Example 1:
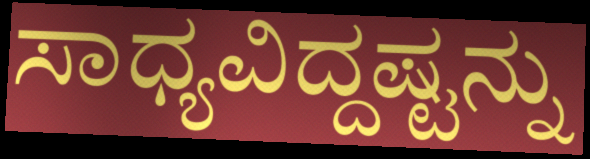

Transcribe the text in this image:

ಸಾಧ್ಯವಿದ್ದಷ್ಟನ್ನು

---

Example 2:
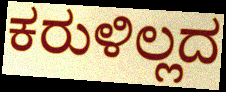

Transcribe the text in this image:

ಕರುಳಿಲ್ಲದ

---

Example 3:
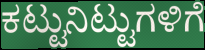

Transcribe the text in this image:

ಕಟ್ಟುನಿಟ್ಟುಗಳಿಗೆ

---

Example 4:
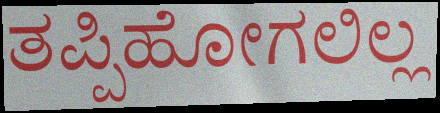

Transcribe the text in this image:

ತಪ್ಪಿಹೋಗಲಿಲ್ಲ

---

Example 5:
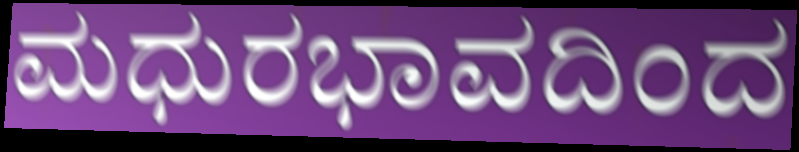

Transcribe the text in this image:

ಮಧುರಭಾವದಿಂದ